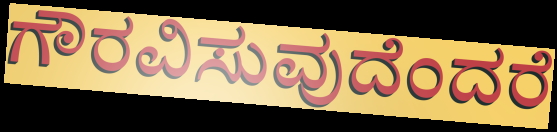
ಗೌರವಿಸುವುದೆಂದರೆ